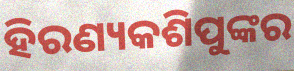
ହିରଣ୍ୟକଶିପୁଙ୍କର